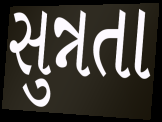
સુન્નતા